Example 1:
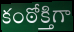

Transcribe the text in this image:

కంఠోక్తిగా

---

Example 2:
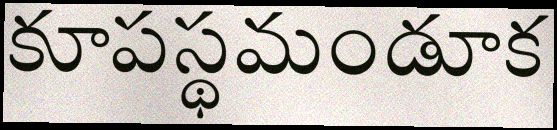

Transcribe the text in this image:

కూపస్థమండూక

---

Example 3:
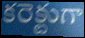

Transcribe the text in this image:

కరెక్టుగా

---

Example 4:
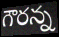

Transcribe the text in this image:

గౌరన్న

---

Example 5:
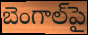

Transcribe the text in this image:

బెంగాల్‌పై